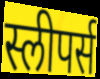
स्लीपर्स